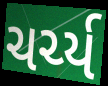
ચર્ચ્ય